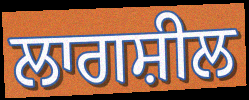
ਲਾਗਸ਼ੀਲ